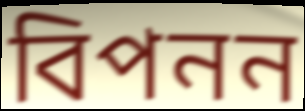
বিপনন